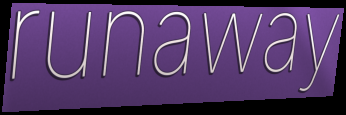
runaway